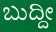
ಬುದ್ದೀ